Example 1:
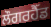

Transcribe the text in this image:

ਲੌਗਰਹੈੱਡ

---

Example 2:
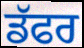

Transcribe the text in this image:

ਡੱਫਰ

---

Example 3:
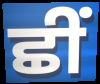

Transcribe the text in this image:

ਛੀਂ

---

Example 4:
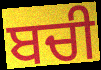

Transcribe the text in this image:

ਬਚੀ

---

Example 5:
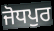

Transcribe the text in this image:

ਜੋਧਪੁਰ